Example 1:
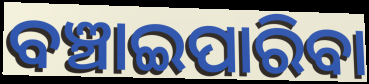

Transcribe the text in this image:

ବଞ୍ଚାଇପାରିବା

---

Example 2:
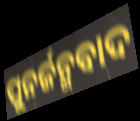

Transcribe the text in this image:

ପୁନର୍ଜନ୍ମବାଦ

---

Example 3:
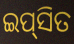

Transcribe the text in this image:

ଇପ୍‍ସିତ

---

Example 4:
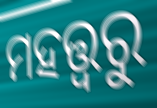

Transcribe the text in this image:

ମହତ୍ତ୍ୱରୁ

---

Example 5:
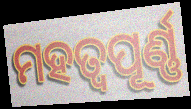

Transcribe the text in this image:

ମହତ୍ଵପୂର୍ଣ୍ଣ